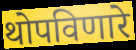
थोपविणारे